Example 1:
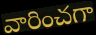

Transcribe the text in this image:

వారించగా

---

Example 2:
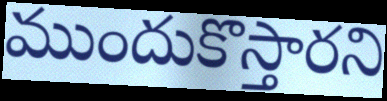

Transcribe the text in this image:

ముందుకొస్తారని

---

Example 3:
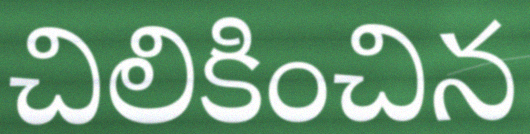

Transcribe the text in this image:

చిలికించిన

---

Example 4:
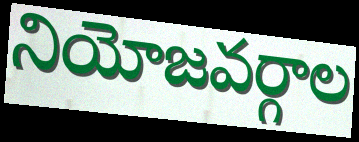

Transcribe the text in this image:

నియోజవర్గాల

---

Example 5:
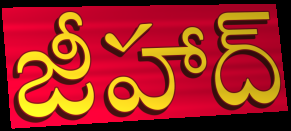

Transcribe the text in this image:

జీహాద్